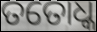
ତତୋଧ୍କ